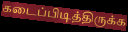
கடைப்பிடித்திருக்க